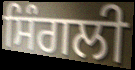
ਸਿੰਗਲੀ